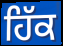
ਹਿੱਕ